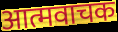
आत्मवाचक